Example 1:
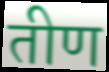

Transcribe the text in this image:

तीण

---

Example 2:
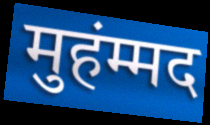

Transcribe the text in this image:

मुहंम्मद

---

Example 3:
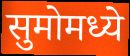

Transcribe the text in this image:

सुमोमध्ये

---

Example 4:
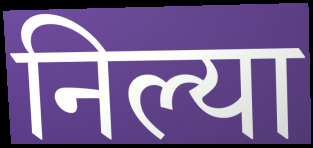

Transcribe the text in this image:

निल्या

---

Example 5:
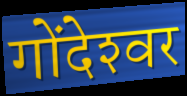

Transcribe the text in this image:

गोंदेश्वर